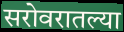
सरोवरातल्या